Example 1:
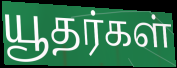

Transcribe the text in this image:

யூதர்கள்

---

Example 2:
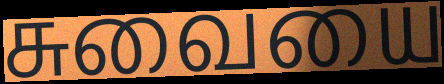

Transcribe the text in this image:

சுவையை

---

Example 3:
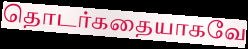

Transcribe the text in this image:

தொடர்கதையாகவே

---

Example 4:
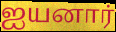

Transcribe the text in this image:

ஐயனார்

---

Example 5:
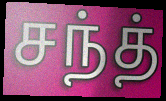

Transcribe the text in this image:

சந்த்